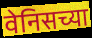
वेनिसच्या